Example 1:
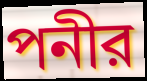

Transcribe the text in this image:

পনীর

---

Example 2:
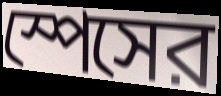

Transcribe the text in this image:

স্পেসের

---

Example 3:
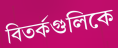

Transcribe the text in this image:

বিতর্কগুলিকে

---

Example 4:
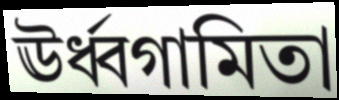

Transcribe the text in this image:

ঊর্ধ্বগামিতা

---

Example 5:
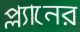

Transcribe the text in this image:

প্ল্যানের